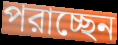
পরাচ্ছেন